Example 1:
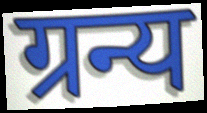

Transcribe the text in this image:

ग्रन्य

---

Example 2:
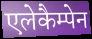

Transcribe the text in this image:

एलेकैम्पेन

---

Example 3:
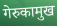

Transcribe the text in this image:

गेरुकामुख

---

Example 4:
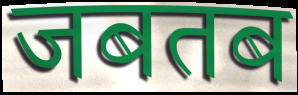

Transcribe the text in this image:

जबतब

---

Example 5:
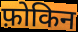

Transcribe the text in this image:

फ़ोकिन